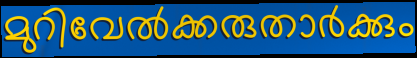
മുറിവേൽക്കരുതാർക്കും